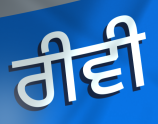
ਰੀਵੀ